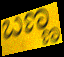
ಬಣ್ಣ